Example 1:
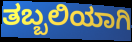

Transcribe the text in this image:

ತಬ್ಬಲಿಯಾಗಿ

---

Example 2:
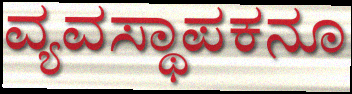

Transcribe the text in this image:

ವ್ಯವಸ್ಥಾಪಕನೂ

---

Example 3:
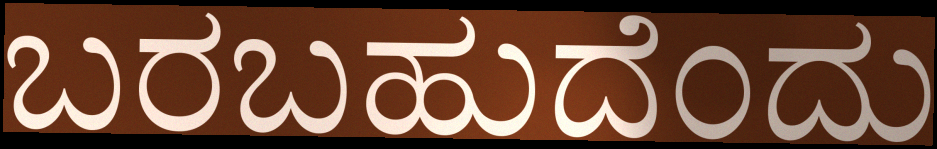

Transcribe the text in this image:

ಬರಬಹುದೆಂದು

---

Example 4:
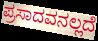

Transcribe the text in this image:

ಪ್ರಸಾದವನಲ್ಲದೆ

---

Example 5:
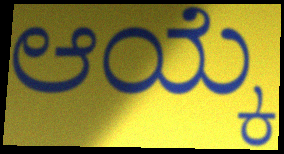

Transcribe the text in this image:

ಆಯ್ಕೆ